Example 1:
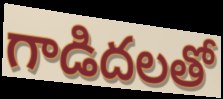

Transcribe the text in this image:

గాడిదలతో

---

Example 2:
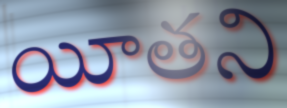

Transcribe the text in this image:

యీతని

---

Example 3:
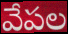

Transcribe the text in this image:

వేపల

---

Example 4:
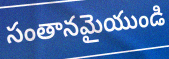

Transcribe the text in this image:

సంతానమైయుండి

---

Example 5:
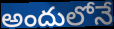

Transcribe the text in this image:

అందులోనే